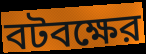
বটবক্ষের